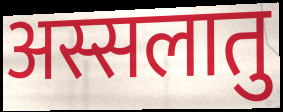
अस्सलातु